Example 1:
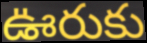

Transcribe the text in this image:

ఊరుకు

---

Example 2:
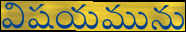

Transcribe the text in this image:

విషయమును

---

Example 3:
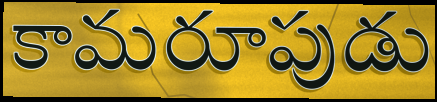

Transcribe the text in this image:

కామరూపుడు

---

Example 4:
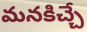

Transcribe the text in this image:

మనకిచ్చే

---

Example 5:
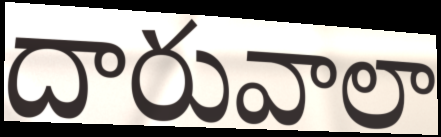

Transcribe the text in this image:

దారువాలా